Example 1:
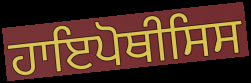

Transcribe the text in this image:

ਹਾਇਪੋਥੀਸਿਸ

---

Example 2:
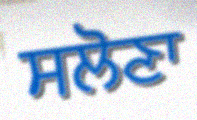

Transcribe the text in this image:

ਸਲੋਣਾ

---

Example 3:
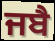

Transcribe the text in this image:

ਜਬੈ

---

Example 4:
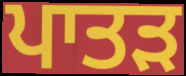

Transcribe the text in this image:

ਪਾਤੜ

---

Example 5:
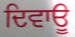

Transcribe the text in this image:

ਦਿਵਾਊ